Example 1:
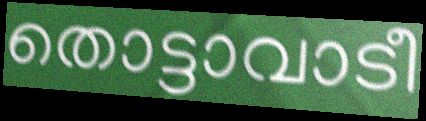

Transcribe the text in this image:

തൊട്ടാവാടീ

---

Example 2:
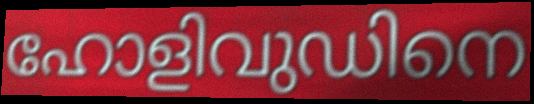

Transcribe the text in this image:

ഹോളിവുഡിനെ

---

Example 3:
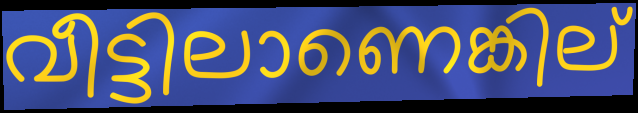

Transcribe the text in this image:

വീട്ടിലാണെങ്കില്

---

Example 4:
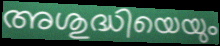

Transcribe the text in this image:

അശുദ്ധിയെയും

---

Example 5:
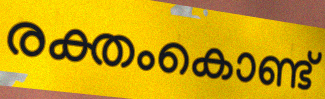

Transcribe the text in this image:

രക്തംകൊണ്ട്